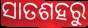
ସାତଶହରୁ